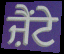
ਜ਼ੈਂਟੇ